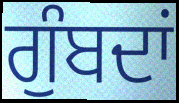
ਗੁੰਬਦਾਂ